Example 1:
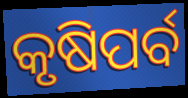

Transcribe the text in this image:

କୃଷିପର୍ବ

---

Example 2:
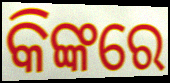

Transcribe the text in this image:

କିଙ୍କରେ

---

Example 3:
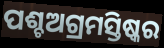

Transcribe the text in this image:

ପଶ୍ଚଅଗ୍ରମସ୍ତିଷ୍କର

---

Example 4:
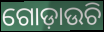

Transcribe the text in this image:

ଗୋଡ଼ାଉଚି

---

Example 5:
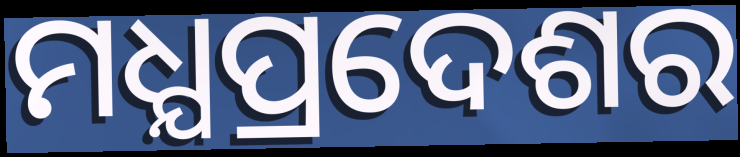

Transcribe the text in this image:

ମଧ୍ଯପ୍ରଦେଶର